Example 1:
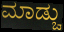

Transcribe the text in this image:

ಮಾಡ್ಚು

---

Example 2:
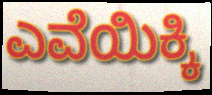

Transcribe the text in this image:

ಎವೆಯಿಕ್ಕಿ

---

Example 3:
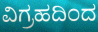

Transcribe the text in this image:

ವಿಗ್ರಹದಿಂದ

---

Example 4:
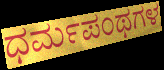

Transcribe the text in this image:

ಧರ್ಮಪಂಥಗಳ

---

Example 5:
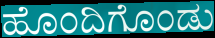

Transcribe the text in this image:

ಹೊಂದಿಗೊಂಡು